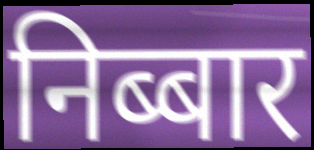
निब्बार